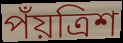
পঁয়ত্রিশ